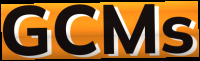
GCMs